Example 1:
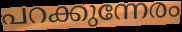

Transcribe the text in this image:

പറക്കുന്നേരം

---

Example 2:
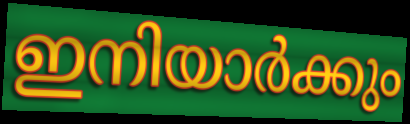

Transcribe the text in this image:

ഇനിയാർക്കും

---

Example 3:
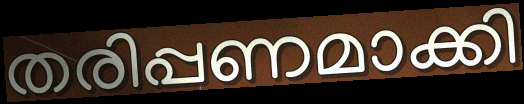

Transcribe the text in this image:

തരിപ്പണമാക്കി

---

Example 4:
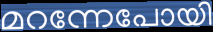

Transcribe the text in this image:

മറന്നേപോയി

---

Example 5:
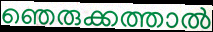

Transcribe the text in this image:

ഞെരുക്കത്താൽ